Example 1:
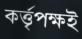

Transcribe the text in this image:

কৰ্ত্তৃপক্ষই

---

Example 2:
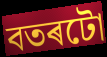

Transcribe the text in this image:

বতৰটো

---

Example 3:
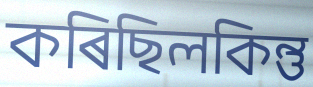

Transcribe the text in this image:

কৰিছিলকিন্তু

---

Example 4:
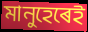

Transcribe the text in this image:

মানুহেৰেই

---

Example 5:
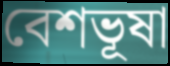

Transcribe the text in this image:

বেশভূষা